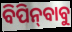
ବିପିନ୍‌ବାବୁ